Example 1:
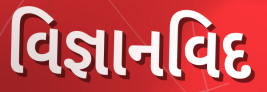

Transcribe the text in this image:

વિજ્ઞાનવિદ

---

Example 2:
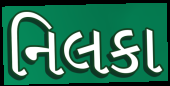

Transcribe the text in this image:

નિલકા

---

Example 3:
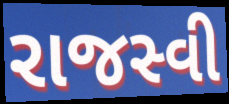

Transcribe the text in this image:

રાજસ્વી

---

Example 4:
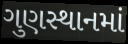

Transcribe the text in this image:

ગુણસ્થાનમાં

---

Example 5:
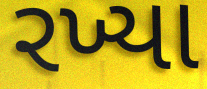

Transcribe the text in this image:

રખ્યા